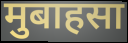
मुबाहसा